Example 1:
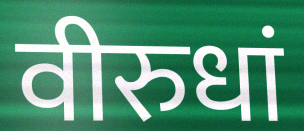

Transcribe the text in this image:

वीरुधां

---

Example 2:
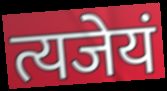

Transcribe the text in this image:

त्यजेयं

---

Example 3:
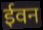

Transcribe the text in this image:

ईवन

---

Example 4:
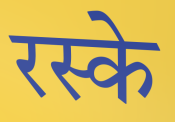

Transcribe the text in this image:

रस्के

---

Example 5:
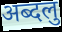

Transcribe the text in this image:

अब्दलु